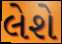
લેશે